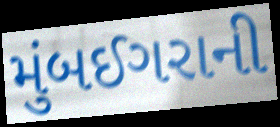
મુંબઈગરાની